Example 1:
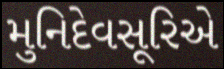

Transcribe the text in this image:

મુનિદેવસૂરિએ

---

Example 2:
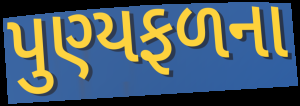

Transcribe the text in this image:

પુણ્યફળના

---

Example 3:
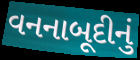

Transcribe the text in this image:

વનનાબૂદીનું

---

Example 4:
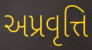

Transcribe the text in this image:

અપ્રવૃત્તિ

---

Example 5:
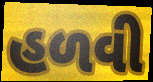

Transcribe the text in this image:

હળવી